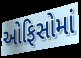
ઓફિસોમાં